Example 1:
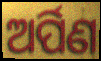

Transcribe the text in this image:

ଅର୍ପିଣ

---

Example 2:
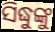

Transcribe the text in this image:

ସିଦ୍ଧୁଙ୍କୁ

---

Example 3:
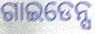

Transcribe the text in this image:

ଗାଇଡେନ୍ସ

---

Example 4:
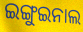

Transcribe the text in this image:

ଇଙ୍ଗୁଇନାଲ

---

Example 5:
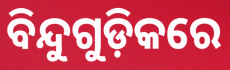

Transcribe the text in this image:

ବିନ୍ଦୁଗୁଡ଼ିକରେ